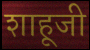
शाहूजी